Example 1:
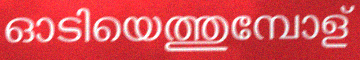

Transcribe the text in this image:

ഓടിയെത്തുമ്പോള്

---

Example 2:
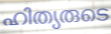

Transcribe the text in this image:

ഹിത്യരുടെ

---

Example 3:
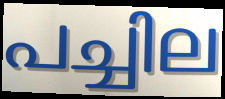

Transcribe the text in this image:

പച്ചില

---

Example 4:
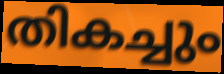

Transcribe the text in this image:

തികച്ചും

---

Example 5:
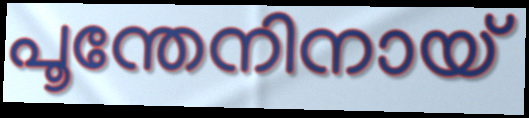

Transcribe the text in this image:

പൂന്തേനിനായ്